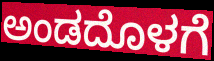
ಅಂಡದೊಳಗೆ